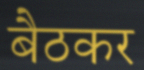
बैठकर